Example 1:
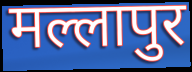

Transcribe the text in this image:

मल्लापुर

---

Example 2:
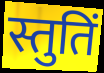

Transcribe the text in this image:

स्तुतिं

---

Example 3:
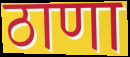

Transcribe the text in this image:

ठाणा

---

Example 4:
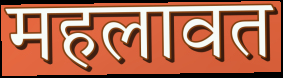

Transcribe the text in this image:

महलावत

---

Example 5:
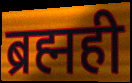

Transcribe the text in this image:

ब्रह्मही